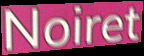
Noiret